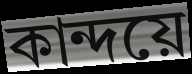
কান্দয়ে